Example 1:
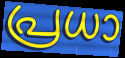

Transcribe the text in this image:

പ്രധാ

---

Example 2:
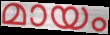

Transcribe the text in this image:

മായം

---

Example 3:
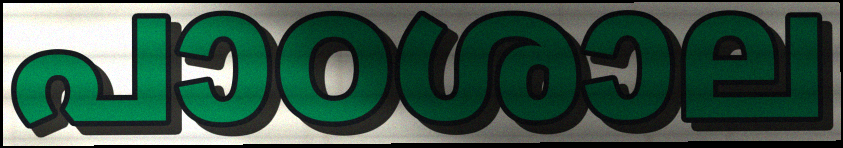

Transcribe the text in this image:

പാഠശാല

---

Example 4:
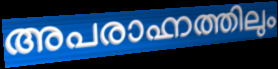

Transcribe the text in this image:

അപരാഹ്നത്തിലും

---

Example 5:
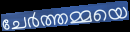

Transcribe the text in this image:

ചേർത്തമ്മയെ